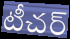
టీచర్